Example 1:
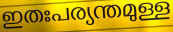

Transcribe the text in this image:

ഇതഃപര്യന്തമുള്ള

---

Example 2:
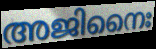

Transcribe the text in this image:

അജിനൈഃ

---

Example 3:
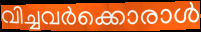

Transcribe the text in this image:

വിച്ചവർക്കൊരാൾ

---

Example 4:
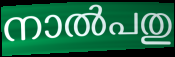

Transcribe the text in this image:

നാൽപതു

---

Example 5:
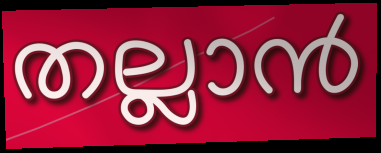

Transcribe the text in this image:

തല്ലാൻ